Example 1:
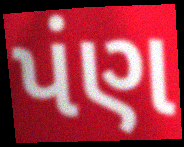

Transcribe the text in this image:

પંણ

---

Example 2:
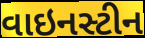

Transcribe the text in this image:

વાઇનસ્ટીન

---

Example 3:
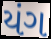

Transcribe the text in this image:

યંગ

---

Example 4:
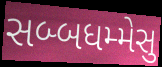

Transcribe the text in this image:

સબ્બધમ્મેસુ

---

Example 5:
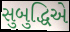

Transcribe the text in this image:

સુબુદ્ધિએ